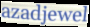
azadjewel